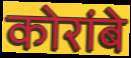
कोरांबे